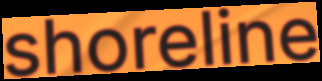
shoreline